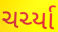
ચર્ચ્યા